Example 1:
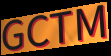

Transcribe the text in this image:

GCTM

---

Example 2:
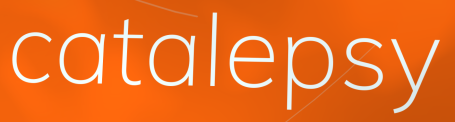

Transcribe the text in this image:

catalepsy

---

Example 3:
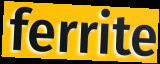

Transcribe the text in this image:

ferrite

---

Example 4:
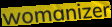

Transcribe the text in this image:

womanizer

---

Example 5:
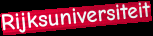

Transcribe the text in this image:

Rijksuniversiteit